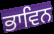
ਭਾਵਿਨ